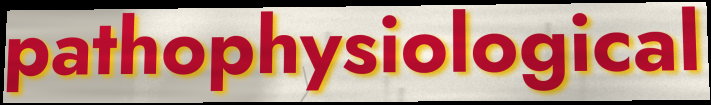
pathophysiological